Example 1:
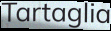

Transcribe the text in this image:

Tartaglia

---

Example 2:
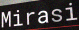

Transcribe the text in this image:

Mirasi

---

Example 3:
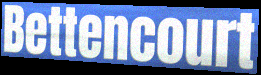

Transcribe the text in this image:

Bettencourt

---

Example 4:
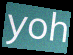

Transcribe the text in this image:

yoh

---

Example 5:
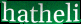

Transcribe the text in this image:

hatheli